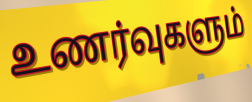
உணர்வுகளும்